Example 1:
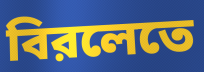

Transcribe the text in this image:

বিরলেতে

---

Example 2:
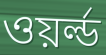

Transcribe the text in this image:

ওয়র্ল্ড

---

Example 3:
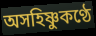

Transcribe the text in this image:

অসহিষ্ণুকণ্ঠে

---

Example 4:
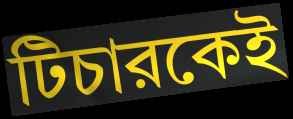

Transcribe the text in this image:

টিচারকেই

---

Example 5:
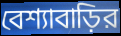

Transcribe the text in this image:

বেশ্যাবাড়ির